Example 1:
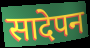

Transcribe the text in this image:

सादेपन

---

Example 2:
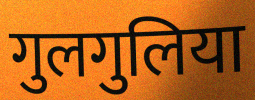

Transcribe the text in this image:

गुलगुलिया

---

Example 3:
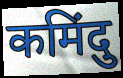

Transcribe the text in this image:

कमिंदु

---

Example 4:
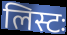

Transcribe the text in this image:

लिस्टः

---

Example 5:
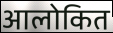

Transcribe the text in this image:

आलोकित